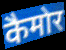
कैमोर